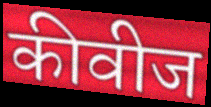
कीवीज